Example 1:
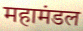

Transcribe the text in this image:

महामंडल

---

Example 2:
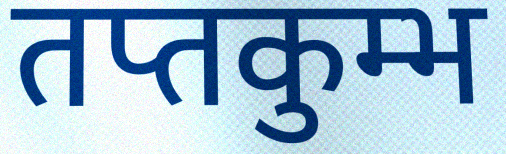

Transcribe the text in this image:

तप्तकुम्भ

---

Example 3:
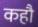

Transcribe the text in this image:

कहौ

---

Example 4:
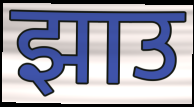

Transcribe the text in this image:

झाउ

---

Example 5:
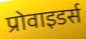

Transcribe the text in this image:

प्रोवाइडर्स